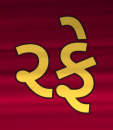
રફે